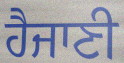
ਹੈਜਾਣੀ